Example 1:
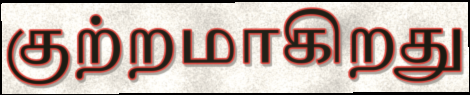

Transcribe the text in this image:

குற்றமாகிறது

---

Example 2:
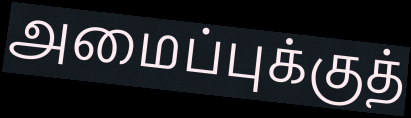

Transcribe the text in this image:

அமைப்புக்குத்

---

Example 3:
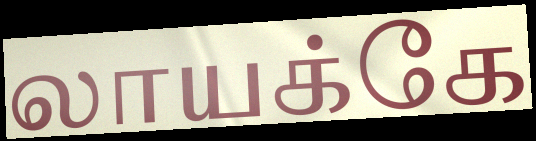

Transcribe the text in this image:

லாயக்கே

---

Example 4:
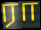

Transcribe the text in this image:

ரா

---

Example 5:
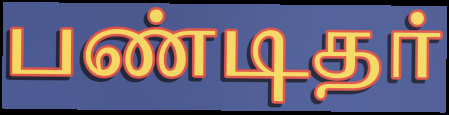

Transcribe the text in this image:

பண்டிதர்